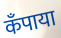
कँपाया